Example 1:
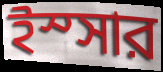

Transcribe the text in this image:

ইস্সার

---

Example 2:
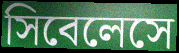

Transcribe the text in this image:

সিবেলেসে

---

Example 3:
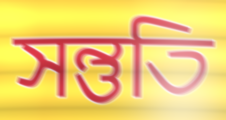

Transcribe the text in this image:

সন্তুতি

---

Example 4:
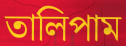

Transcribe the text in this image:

তালিপাম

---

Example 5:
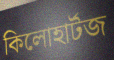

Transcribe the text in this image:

কিলোহার্টজ